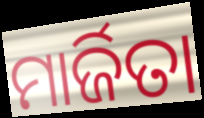
ମାର୍ଜିତା